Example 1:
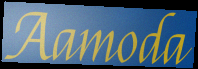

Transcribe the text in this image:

Aamoda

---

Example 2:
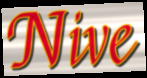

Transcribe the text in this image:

Nive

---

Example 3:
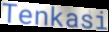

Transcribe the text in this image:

Tenkasi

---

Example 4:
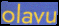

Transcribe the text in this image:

olavu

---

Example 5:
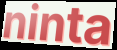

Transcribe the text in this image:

ninta